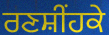
ਰਣਸ਼ੀਂਹਕੇ